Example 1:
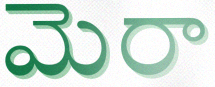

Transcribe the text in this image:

మెరా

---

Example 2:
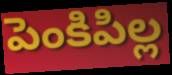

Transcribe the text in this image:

పెంకిపిల్ల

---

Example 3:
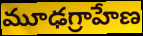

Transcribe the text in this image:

మూఢగ్రాహేణ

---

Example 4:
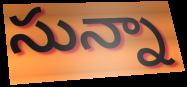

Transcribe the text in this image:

సున్నా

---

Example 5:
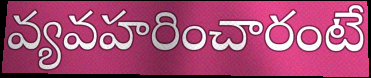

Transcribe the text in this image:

వ్యవహరించారంటే